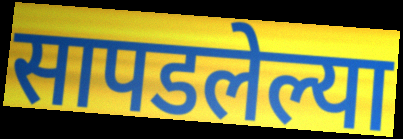
सापडलेल्या